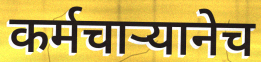
कर्मचाऱ्यानेच